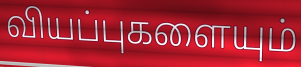
வியப்புகளையும்